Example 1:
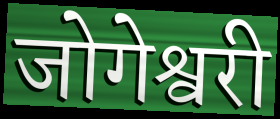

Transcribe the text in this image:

जोगेश्वरी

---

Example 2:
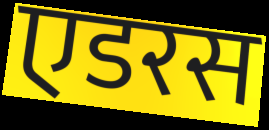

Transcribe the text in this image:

एडरस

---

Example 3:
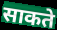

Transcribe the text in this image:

साकते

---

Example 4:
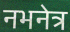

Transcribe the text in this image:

नभनेत्र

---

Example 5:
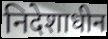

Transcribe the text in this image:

निदेशाधीन